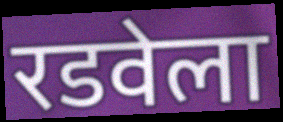
रडवेला